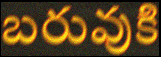
బరువుకి